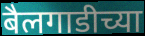
बैलगाडीच्या